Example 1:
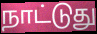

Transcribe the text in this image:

நாட்டுது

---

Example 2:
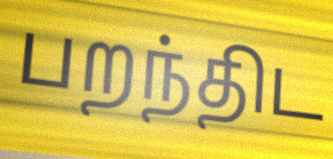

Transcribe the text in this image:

பறந்திட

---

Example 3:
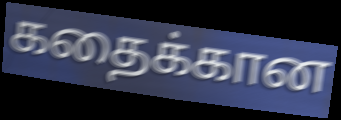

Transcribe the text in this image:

கதைக்கான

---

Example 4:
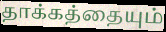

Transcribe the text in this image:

தாக்கத்தையும்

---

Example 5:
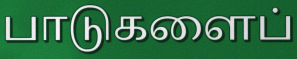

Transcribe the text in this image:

பாடுகளைப்